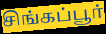
சிங்கப்பூர்